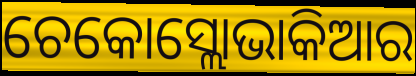
ଚେକୋସ୍ଲୋଭାକିଆର